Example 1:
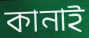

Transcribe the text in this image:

কানাই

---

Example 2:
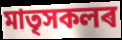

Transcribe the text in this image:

মাতৃসকলৰ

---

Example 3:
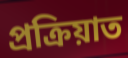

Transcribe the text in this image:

প্ৰক্ৰিয়াত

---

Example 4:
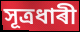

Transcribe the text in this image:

সূত্ৰধাৰী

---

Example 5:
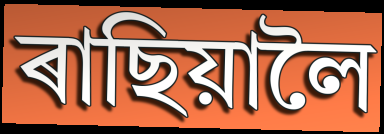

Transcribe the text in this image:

ৰাছিয়ালৈ